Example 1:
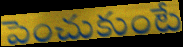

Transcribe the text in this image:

పెంచుకుంటే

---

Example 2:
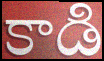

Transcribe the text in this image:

కాడి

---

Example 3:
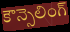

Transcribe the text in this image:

కౌన్సెలింగ్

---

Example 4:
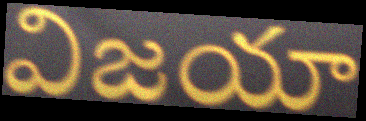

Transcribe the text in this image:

విజయా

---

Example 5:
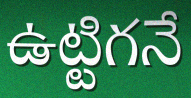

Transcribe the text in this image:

ఉట్టిగనే